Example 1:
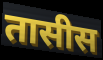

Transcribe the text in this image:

तासीस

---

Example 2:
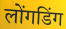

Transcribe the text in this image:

लोंगडिंग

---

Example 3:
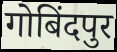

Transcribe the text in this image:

गोबिंदपुर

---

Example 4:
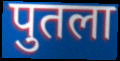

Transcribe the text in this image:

पुतला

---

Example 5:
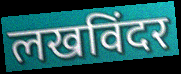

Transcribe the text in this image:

लखविंदर